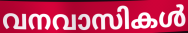
വനവാസികൾ